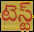
టెస్ట్